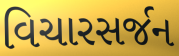
વિચારસર્જન